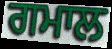
ਗਮਾਲ